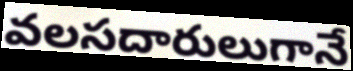
వలసదారులుగానే